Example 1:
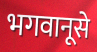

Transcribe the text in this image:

भगवानूसे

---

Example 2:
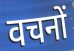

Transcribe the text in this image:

वचनों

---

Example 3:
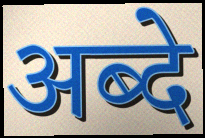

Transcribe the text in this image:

अब्दे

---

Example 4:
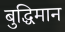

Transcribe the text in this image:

बुद्धिमान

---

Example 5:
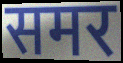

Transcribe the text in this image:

समर